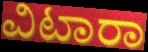
ವಿಟಾರಾ